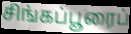
சிங்கப்பூரைப்